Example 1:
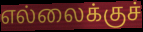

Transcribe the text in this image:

எல்லைக்குச்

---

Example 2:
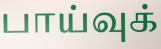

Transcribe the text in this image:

பாய்வுக்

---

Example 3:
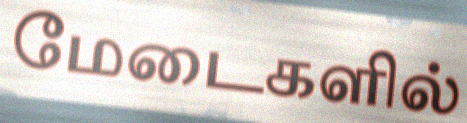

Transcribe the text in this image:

மேடைகளில்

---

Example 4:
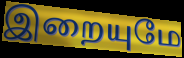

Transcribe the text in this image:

இறையுமே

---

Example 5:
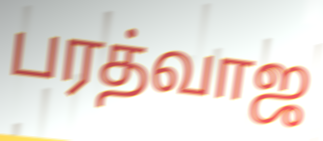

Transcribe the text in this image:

பரத்வாஜ